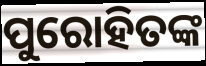
ପୁରୋହିତଙ୍କ